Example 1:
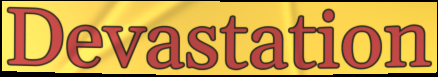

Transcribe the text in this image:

Devastation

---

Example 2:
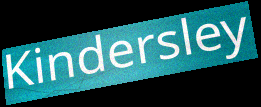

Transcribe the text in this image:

Kindersley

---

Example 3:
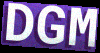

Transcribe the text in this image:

DGM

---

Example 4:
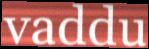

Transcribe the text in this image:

vaddu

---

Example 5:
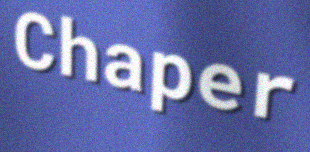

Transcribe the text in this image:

Chaper